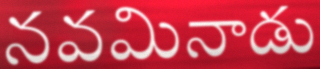
నవమినాడు